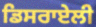
ਡਿਸਰਾਏਲੀ